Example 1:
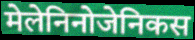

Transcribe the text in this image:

मेलेनिनोजेनिकस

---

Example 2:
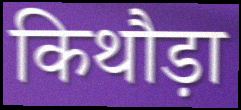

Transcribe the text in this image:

किथौड़ा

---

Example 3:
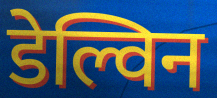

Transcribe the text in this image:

डेल्विन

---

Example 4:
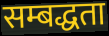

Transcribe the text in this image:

सम्‍बद्धता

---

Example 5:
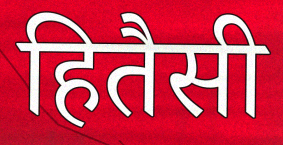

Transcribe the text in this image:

हितैसी